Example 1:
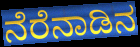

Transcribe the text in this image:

ನೆರೆನಾಡಿನ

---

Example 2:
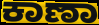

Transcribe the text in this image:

ಕಾಣಾ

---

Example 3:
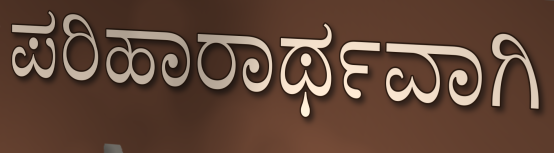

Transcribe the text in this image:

ಪರಿಹಾರಾರ್ಥವಾಗಿ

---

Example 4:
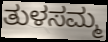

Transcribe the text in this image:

ತುಳಸಮ್ಮ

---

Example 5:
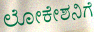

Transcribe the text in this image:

ಲೋಕೇಶನಿಗೆ